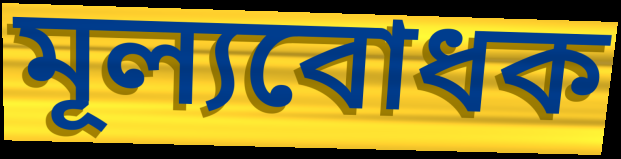
মূল্যবোধক